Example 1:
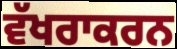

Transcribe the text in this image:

ਵੱਖਰਾਕਰਨ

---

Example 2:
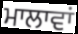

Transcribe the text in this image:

ਮਾਲਾਵਾਂ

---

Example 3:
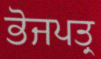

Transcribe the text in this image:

ਭੋਜਪਤ੍ਰ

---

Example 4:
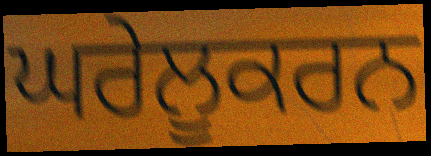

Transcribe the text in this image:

ਘਰੇਲੂਕਰਨ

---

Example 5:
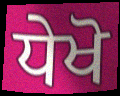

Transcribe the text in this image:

ਧੇਖੋ